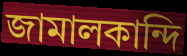
জামালকান্দি